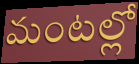
మంటల్లో